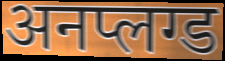
अनप्लग्ड